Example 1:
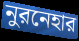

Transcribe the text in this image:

নুরনেহার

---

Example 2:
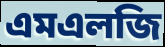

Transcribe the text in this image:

এমএলজি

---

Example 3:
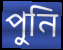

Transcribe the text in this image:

পুনি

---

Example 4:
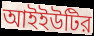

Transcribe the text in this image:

আইইউটির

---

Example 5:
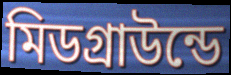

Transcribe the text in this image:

মিডগ্রাউন্ডে